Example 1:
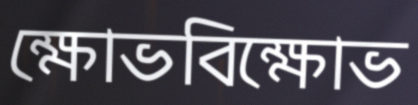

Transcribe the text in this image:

ক্ষোভবিক্ষোভ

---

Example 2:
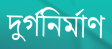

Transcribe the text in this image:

দুর্গনির্মাণ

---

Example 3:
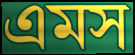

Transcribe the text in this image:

এমস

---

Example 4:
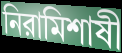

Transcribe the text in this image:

নিরামিশাষী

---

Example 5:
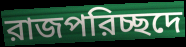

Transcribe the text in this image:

রাজপরিচ্ছদে